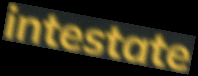
intestate